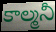
కాల్మనీ